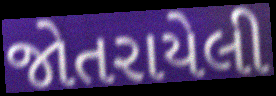
જોતરાયેલી